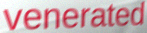
venerated